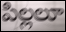
పిల్లలూ